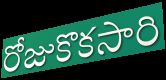
రోజుకొకసారి